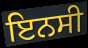
ਇਨਸੀ